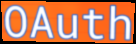
OAuth